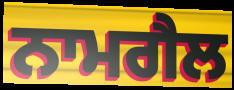
ਨਾਮਗੈਲ